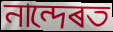
নান্দেৰত